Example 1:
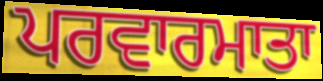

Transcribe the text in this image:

ਪਰਵਾਰਮਾਤਾ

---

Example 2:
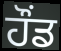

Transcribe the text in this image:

ਹੌਂਡ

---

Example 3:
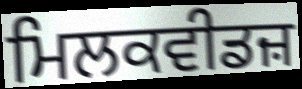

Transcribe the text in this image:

ਮਿਲਕਵੀਡਜ਼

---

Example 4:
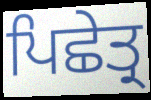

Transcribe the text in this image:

ਪਿਛੇਤ੍ਰ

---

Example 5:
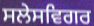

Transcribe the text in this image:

ਸਲੇਸਵਿਗਰ